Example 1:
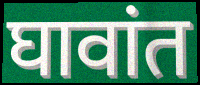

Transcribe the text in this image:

घावांत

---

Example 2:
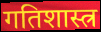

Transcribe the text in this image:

गतिशास्त्र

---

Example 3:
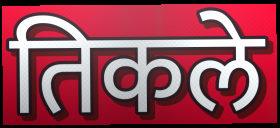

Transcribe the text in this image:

तिकले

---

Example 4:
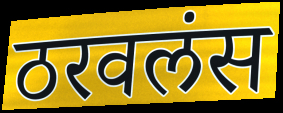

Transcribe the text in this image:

ठरवलंस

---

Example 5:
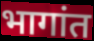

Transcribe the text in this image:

भागांत